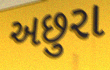
અછુરા